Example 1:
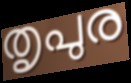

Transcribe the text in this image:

തൃപുര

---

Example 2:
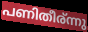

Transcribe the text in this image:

പണിതീര്ന്നു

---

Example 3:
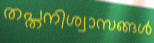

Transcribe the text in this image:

തപ്തനിശ്വാസങ്ങൾ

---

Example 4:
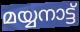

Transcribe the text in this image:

മയ്യനാട്ട്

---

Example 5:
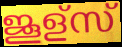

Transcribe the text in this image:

ജൂള്സ്